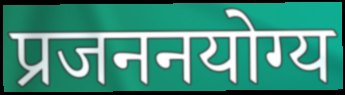
प्रजननयोग्य